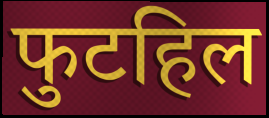
फुटहिल